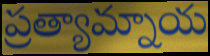
ప్రత్యామ్నాయ